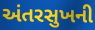
અંતરસુખની